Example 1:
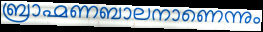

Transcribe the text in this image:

ബ്രാഹ്മണബാലനാണെന്നും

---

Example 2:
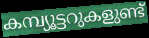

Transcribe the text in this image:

കമ്പ്യൂട്ടറുകളുണ്ട്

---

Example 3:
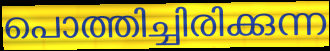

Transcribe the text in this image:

പൊത്തിച്ചിരിക്കുന്ന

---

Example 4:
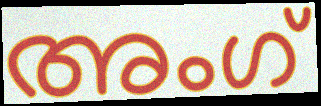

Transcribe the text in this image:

അംഗ്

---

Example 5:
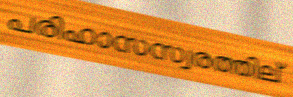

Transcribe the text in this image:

പരിഹാസസ്വരത്തില്